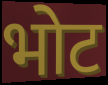
भोट